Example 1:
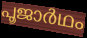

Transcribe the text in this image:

പൂജാർഥം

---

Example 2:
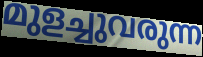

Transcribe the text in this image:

മുളച്ചുവരുന്ന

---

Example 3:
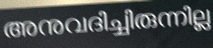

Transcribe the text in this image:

അനുവദിച്ചിരുന്നില്ല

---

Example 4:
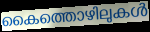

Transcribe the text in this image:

കൈത്തൊഴിലുകൾ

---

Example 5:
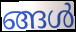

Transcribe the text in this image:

ങ്ങൾ